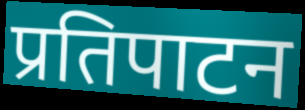
प्रतिपाटन